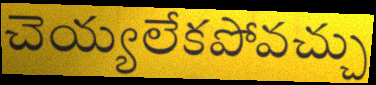
చెయ్యలేకపోవచ్చు